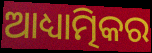
ଆଧ୍ୟାତ୍ମିକର